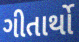
ગીતાર્થો